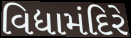
વિદ્યામંદિરે